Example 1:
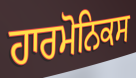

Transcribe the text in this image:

ਹਾਰਮੋਨਿਕਸ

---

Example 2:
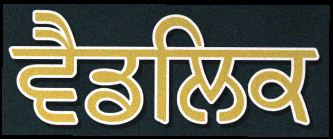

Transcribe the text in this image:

ਵੈਡਲਿਕ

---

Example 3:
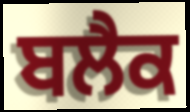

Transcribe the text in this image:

ਬਲੈਕ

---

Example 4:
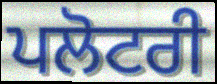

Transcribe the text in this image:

ਪਲੋਟਰੀ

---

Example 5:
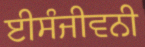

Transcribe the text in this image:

ਈਸੰਜੀਵਨੀ